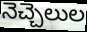
నెచ్చెలుల